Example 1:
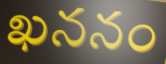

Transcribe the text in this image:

ఖననం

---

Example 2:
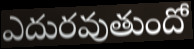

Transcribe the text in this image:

ఎదురవుతుందో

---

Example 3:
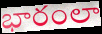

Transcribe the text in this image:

భారంలా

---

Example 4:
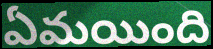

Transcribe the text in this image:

ఏమయింది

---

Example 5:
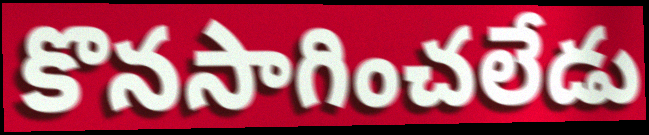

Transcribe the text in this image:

కొనసాగించలేడు